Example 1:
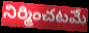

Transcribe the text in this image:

నిర్మించటమే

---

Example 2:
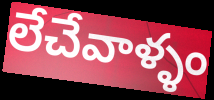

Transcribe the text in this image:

లేచేవాళ్ళం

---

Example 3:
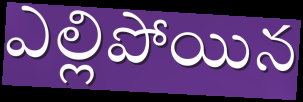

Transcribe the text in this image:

ఎల్లిపోయిన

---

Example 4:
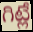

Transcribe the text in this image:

గిట్లే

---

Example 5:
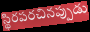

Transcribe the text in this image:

స్థిరపరచినప్పుడు